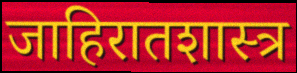
जाहिरातशास्त्र